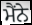
ਮੈਂਨੇ